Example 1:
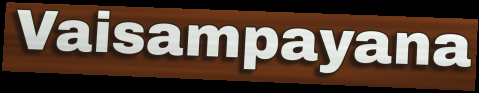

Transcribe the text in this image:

Vaisampayana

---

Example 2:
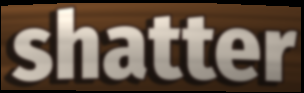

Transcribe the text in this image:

shatter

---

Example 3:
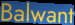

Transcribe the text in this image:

Balwant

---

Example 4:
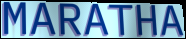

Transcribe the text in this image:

MARATHA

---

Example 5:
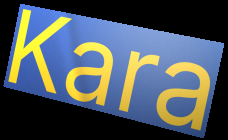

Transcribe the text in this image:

Kara